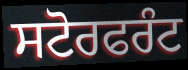
ਸਟੋਰਫਰੰਟ